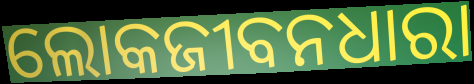
ଲୋକଜୀବନଧାରା